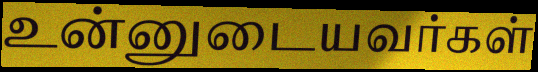
உன்னுடையவர்கள்